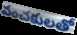
వంచకులతో